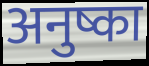
अनुष्का